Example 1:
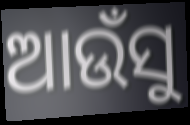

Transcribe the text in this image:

ଆଉଁସୁ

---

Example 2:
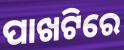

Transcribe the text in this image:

ପାଖଟିରେ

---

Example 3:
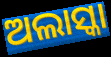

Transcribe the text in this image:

ଅଲାସ୍କା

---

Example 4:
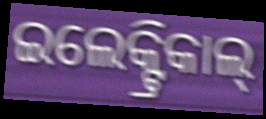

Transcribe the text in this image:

ଇଲେକ୍ଟ୍ରିକାଲ୍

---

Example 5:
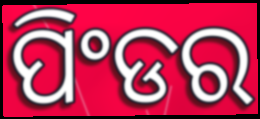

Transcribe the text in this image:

ପିଂଡର